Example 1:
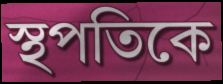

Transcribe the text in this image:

স্থপতিকে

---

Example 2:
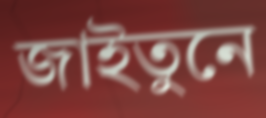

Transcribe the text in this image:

জাইতুনে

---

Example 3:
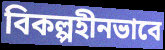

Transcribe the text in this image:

বিকল্পহীনভাবে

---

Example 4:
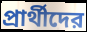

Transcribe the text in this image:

প্রার্থীদের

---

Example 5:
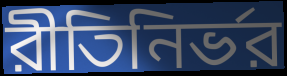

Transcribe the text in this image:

রীতিনির্ভর